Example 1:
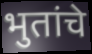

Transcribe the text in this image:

भुतांचे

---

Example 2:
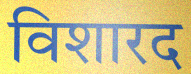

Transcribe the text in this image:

विशारद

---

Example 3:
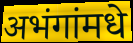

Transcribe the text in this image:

अभंगांमधे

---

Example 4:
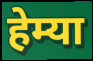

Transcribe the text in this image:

हेम्या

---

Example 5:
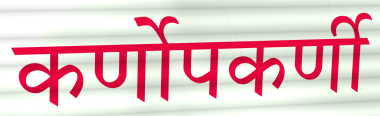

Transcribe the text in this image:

कर्णोपकर्णी